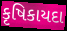
કૃષિકાયદા